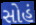
સોહં